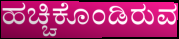
ಹಚ್ಚಿಕೊಂಡಿರುವ